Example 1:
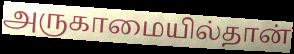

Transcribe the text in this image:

அருகாமையில்தான்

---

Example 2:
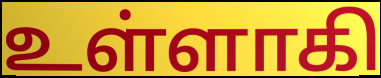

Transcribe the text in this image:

உள்ளாகி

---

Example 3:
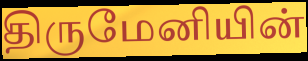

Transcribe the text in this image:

திருமேனியின்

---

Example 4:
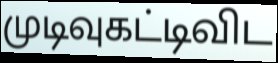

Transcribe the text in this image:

முடிவுகட்டிவிட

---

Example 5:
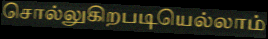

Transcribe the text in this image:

சொல்லுகிறபடியெல்லாம்